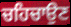
ਚਹਿਚਾਉਣ